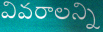
వివరాలన్ని